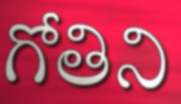
గోతిని